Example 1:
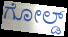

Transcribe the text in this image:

ಗೋಲ್ಡ್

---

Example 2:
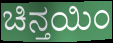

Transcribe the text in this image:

ಚಿನ್ತಯಿಂ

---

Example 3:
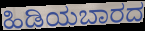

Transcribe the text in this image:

ಹಿಡಿಯಬಾರದ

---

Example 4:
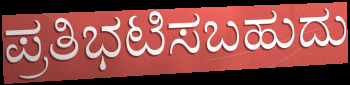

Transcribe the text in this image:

ಪ್ರತಿಭಟಿಸಬಹುದು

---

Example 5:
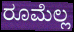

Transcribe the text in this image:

ರೂಮೆಲ್ಲ